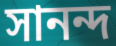
সানন্দ